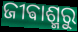
ଜୀଵାଶ୍ମରୁ